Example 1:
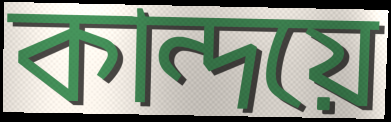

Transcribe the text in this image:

কান্দয়ে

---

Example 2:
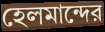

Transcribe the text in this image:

হেলমান্দের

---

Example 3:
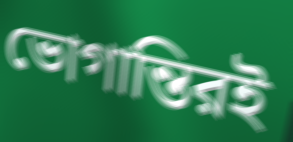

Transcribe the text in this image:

ভোগান্তিরই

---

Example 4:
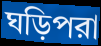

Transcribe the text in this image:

ঘড়িপরা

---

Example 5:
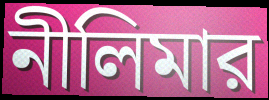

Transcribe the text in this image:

নীলিমার